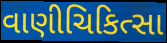
વાણીચિકિત્સા